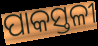
ପାକସ୍ତଳୀ